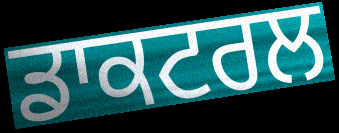
ਡਾਕਟਰਲ